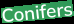
Conifers